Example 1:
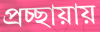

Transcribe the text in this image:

প্রচ্ছায়ায়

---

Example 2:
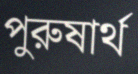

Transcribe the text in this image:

পুরুষার্থ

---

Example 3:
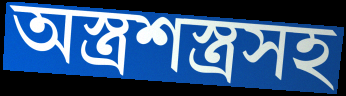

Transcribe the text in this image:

অস্ত্রশস্ত্রসহ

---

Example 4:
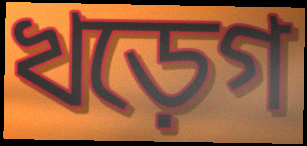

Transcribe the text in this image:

খড়েগ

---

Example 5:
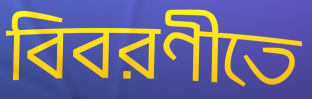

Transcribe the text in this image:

বিবরণীতে